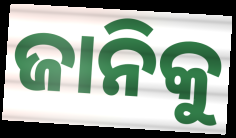
ଜାନିକୁ